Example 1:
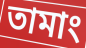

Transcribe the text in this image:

তামাং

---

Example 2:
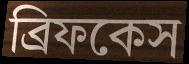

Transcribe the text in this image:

ব্রিফকেস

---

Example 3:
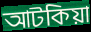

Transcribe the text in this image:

আটকিয়া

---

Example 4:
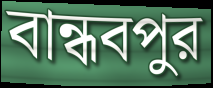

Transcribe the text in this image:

বান্ধবপুর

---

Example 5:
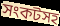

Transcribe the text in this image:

সংকটসহ